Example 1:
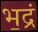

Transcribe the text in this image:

भ॒द्रं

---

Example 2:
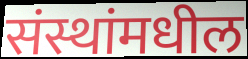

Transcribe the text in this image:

संस्थांमधील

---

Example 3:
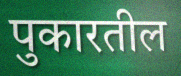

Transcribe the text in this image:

पुकारतील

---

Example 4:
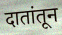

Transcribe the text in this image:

दातांतून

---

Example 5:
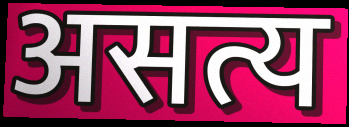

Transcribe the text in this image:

असत्य